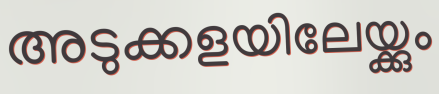
അടുക്കളയിലേയ്ക്കും